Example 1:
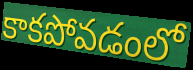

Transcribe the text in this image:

కాకపోవడంలో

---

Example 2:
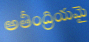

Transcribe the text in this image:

అతీంద్రియమై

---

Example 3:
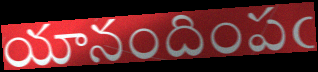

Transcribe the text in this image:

యానందింపఁ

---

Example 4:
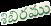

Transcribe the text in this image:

శిబిరము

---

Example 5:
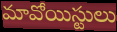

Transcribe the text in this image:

మావోయిస్టులు